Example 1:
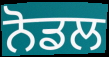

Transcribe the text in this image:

ਨੋਡਲ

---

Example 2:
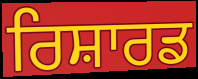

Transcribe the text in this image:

ਰਿਸ਼ਾਰਡ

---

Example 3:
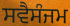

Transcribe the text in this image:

ਸਵੈਸੰਜਮ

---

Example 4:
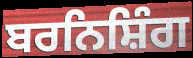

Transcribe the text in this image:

ਬਰਨਿਸ਼ਿੰਗ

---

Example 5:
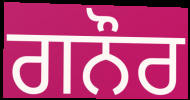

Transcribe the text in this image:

ਗਨੌਰ